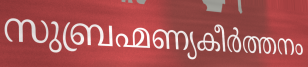
സുബ്രഹ്മണ്യകീർത്തനം